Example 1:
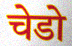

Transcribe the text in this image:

चेडो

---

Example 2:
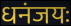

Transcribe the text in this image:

धनंजयः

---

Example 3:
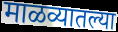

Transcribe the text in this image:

माळव्यातल्या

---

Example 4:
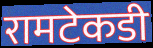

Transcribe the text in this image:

रामटेकडी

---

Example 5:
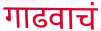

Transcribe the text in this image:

गाढवाचं